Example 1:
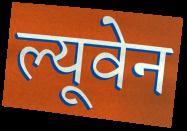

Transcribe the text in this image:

ल्यूवेन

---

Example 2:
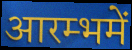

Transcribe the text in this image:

आरम्भमें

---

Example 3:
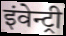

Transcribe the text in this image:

इंवेन्ट्री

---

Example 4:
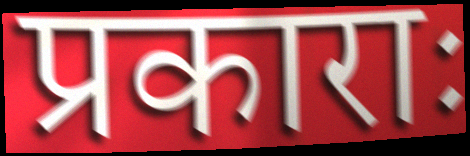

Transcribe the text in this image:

प्रकाराः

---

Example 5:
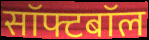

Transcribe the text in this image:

सॉफ्टबॉल